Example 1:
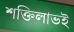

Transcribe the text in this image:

শক্তিলাভই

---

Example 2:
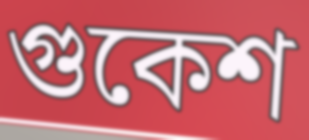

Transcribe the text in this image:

গুকেশ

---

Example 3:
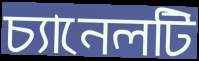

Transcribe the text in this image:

চ্যানেলটি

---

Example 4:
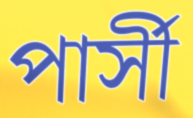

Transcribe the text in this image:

পার্সী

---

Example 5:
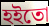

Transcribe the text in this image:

হইতো